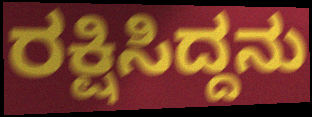
ರಕ್ಷಿಸಿದ್ದನು